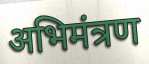
अभिमंत्रण